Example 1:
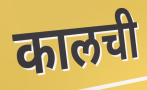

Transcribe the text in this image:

कालची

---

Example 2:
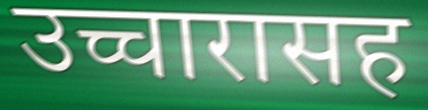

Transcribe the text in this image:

उच्चारासह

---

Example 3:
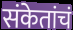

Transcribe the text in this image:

संकेतांचं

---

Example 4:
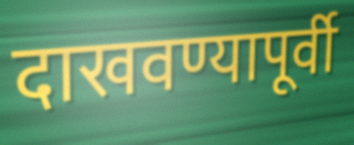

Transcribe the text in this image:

दाखवण्यापूर्वी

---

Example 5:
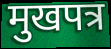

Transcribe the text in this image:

मुखपत्र